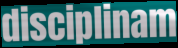
disciplinam